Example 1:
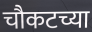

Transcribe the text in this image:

चौकटच्या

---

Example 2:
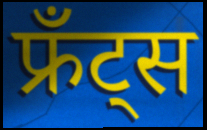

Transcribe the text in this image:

फ्रँट्स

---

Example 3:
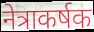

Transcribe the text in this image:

नेत्राकर्षक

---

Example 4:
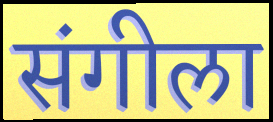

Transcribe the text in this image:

संगीला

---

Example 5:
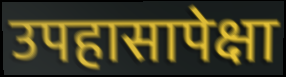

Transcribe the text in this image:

उपहासापेक्षा